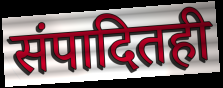
संपादितही